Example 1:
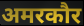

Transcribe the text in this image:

अमरकौर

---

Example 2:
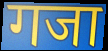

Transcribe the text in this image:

गजा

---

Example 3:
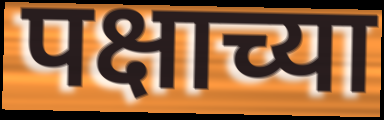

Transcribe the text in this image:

पक्षाच्या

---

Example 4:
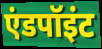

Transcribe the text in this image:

एंडपॉइंट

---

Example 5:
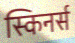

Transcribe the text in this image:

स्किनर्स